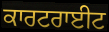
ਕਾਰਟਰਾਈਟ